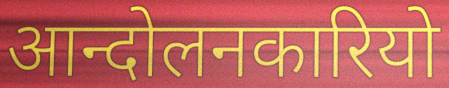
आन्दोलनकारियो